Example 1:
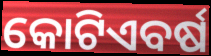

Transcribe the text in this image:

କୋଟିଏବର୍ଷ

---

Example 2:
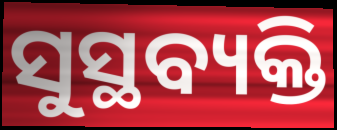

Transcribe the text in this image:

ସୁସ୍ଥବ୍ୟକ୍ତି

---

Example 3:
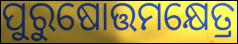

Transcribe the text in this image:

ପୁରୁଷୋତ୍ତମକ୍ଷେତ୍ର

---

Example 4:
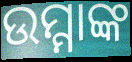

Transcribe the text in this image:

ଉମ୍ମାଙ୍କ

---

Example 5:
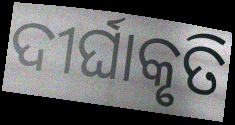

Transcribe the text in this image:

ଦୀର୍ଘାକୃତି